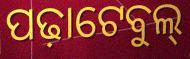
ପଢ଼ାଟେବୁଲ୍